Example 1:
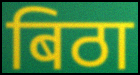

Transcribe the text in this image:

बिठा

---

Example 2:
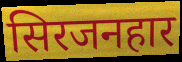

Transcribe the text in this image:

सिरजनहार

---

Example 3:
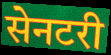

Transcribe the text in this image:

सेनटरी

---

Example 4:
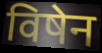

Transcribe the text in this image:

विषेन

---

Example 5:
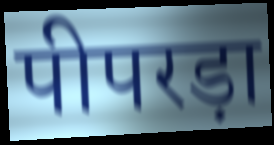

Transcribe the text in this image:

पीपरड़ा